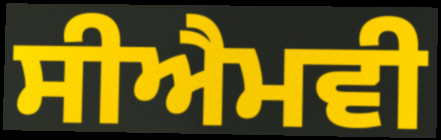
ਸੀਐਮਵੀ